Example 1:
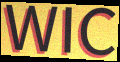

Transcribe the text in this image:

WIC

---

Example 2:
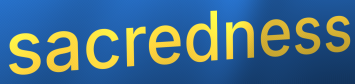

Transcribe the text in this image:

sacredness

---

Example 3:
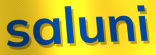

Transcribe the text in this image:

saluni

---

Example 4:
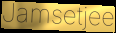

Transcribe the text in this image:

Jamsetjee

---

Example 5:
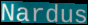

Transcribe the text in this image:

Nardus